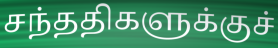
சந்ததிகளுக்குச்